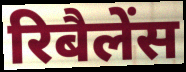
रिबैलेंस